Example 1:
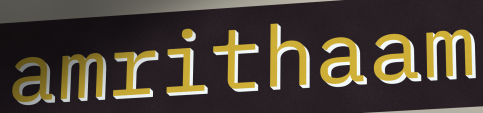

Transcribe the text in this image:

amrithaam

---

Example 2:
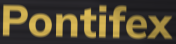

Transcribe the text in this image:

Pontifex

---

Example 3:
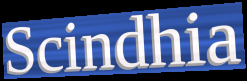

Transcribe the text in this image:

Scindhia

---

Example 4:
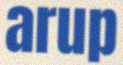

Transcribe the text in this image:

arup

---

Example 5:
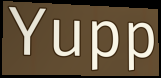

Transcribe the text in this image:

Yupp